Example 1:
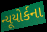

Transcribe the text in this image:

ન્યૂયોર્કના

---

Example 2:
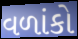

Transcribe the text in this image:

વળાંકો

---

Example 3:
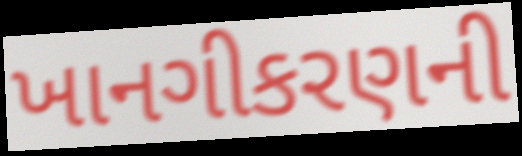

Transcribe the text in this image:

ખાનગીકરણની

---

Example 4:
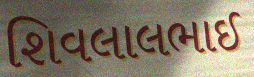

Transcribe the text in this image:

શિવલાલભાઈ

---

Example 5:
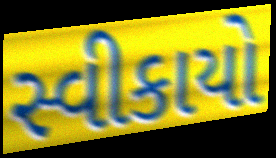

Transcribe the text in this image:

સ્વીકાયો